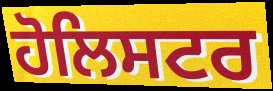
ਹੋਲਿਸਟਰ